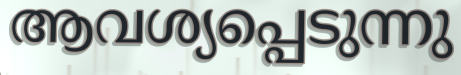
ആവശ്യപ്പെടുന്നു